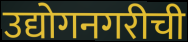
उद्योगनगरीची